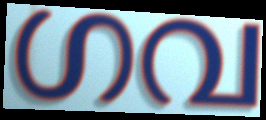
ഗവ